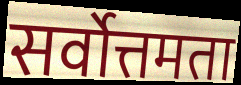
सर्वोत्तमता